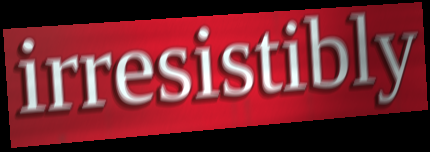
irresistibly